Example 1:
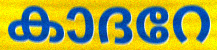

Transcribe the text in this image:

കാദറേ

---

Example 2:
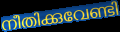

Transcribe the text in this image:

നീതിക്കുവേണ്ടി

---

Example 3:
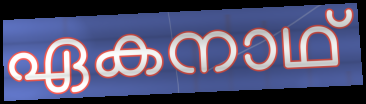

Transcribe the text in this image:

ഏകനാഥ്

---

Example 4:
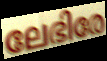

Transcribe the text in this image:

ലേഭിരേ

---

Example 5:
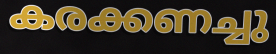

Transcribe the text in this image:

കരക്കണച്ചു